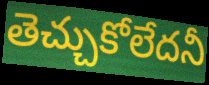
తెచ్చుకోలేదనీ